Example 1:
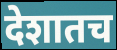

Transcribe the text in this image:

देशातच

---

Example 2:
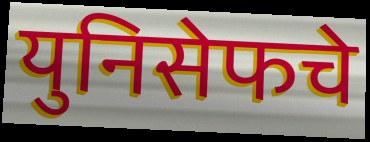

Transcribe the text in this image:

युनिसेफचे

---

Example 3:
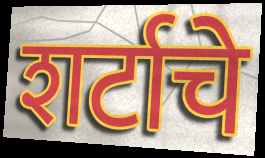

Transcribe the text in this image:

शर्टाचे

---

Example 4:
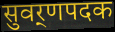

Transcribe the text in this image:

सुवर्णपदक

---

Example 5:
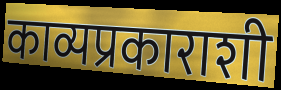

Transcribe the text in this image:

काव्यप्रकाराशी